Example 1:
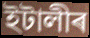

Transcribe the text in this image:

ইটালীৰ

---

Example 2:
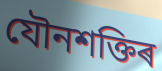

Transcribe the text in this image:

যৌনশক্তিৰ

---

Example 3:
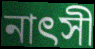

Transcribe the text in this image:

নাৎসী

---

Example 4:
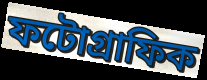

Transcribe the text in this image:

ফটোগ্ৰাফিক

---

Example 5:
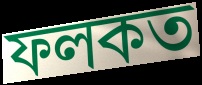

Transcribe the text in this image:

ফলকত